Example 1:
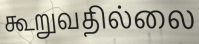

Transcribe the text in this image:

கூறுவதில்லை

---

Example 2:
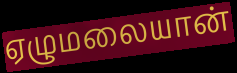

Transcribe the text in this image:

ஏழுமலையான்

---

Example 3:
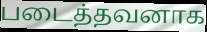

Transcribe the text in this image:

படைத்தவனாக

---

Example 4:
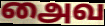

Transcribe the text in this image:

அைவ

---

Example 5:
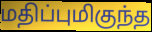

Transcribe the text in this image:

மதிப்புமிகுந்த